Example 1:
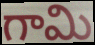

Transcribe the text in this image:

గామి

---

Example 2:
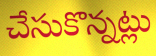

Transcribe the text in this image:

చేసుకొన్నట్లు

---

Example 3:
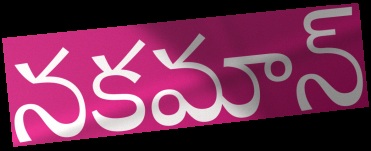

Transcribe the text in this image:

నకమాన్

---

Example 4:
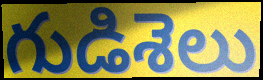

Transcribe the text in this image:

గుడిశెలు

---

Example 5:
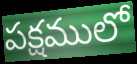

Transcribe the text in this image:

పక్షములో